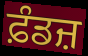
ਫ਼ੰਡਜ਼